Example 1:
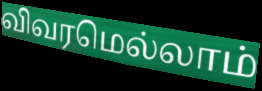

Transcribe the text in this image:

விவரமெல்லாம்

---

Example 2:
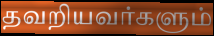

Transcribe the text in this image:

தவறியவர்களும்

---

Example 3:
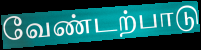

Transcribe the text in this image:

வேண்டற்பாடு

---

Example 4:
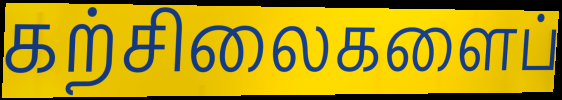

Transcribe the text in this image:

கற்சிலைகளைப்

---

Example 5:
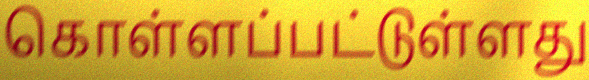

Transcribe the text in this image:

கொள்ளப்பட்டுள்ளது